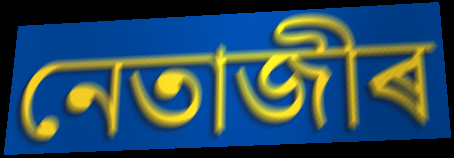
নেতাজীৰ